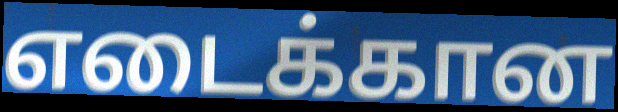
எடைக்கான